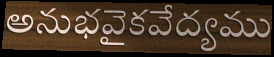
అనుభవైకవేద్యము